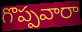
గొప్పవారా